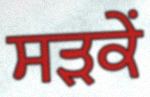
ਸੜਕੇਂ